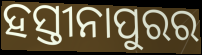
ହସ୍ତୀନାପୁରର